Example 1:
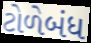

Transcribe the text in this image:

ટોળેબંધ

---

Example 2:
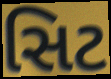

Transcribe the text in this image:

સિટ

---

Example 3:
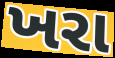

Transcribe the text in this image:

ખરા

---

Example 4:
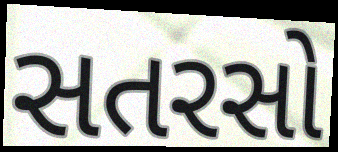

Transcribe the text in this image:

સતરસો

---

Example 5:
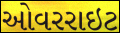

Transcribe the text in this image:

ઓવરરાઇટ